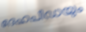
ദേഹപീഡയും